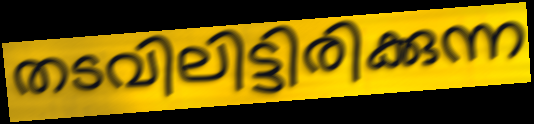
തടവിലിട്ടിരിക്കുന്ന